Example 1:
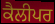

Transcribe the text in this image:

ਕੈਲੀਪਰ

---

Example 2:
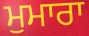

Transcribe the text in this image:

ਮੁਮਾਰਾ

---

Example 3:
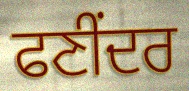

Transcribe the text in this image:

ਫਣੀਂਦਰ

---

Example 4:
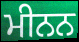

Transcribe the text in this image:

ਮੀਨਨ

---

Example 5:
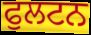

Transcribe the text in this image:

ਫੁਲਟਨ